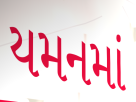
યમનમાં